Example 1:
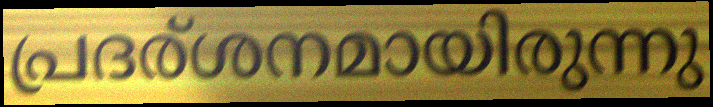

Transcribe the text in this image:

പ്രദര്ശനമായിരുന്നു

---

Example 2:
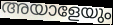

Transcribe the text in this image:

അയാളേയും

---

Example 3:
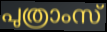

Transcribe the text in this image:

പുത്രാംസ്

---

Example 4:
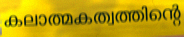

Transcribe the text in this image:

കലാത്മകത്വത്തിന്റെ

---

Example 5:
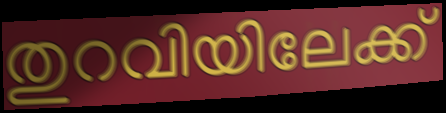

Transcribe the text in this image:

തുറവിയിലേക്ക്